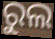
ରୁଲ